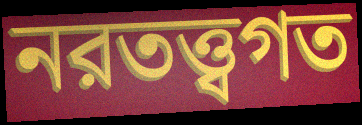
নরতত্ত্বগত